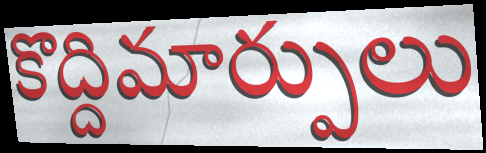
కొద్దిమార్పులు